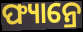
ଫ୍ୟାନ୍ରେ